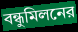
বন্ধুমিলনের